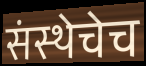
संस्थेचेच